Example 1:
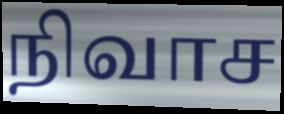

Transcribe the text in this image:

நிவாச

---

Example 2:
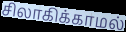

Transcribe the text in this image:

சிலாகிக்காமல்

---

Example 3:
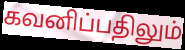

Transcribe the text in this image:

கவனிப்பதிலும்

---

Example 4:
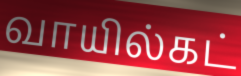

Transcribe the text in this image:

வாயில்கட்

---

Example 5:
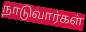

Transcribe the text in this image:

நாடுவார்கள்